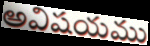
అవిషయము